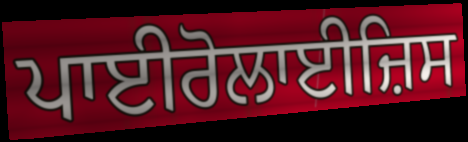
ਪਾਈਰੋਲਾਈਜ਼ਿਸ